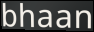
bhaan